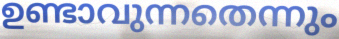
ഉണ്ടാവുന്നതെന്നും